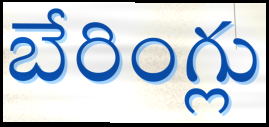
బేరింగ్లు